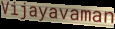
Vijayavaman